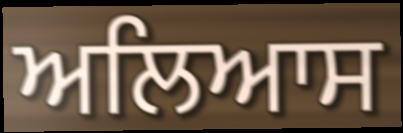
ਅਲਿਆਸ